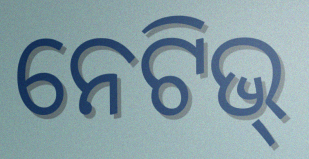
ନେଟିଭ୍